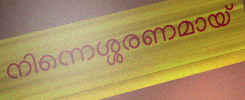
നിന്നെശ്ശരണമായ്